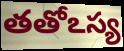
తతోఽస్య